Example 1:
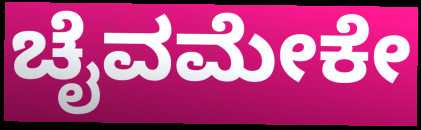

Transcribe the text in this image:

ಚೈವಮೇಕೇ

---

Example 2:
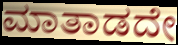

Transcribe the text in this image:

ಮಾತಾಡದೇ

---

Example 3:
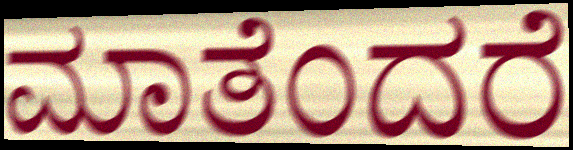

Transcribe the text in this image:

ಮಾತೆಂದರೆ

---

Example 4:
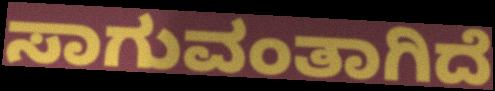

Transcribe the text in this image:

ಸಾಗುವಂತಾಗಿದೆ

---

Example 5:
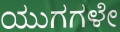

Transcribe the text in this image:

ಯುಗಗಳೇ